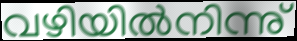
വഴിയിൽനിന്നു്